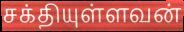
சக்தியுள்ளவன்